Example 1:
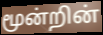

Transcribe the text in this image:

மூன்றின்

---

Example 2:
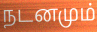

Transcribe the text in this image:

நடனமும்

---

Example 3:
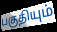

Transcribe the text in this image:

பகுதியும்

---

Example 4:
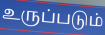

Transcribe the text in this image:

உருப்படும்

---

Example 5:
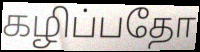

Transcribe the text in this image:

கழிப்பதோ